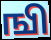
ஙி